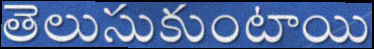
తెలుసుకుంటాయి